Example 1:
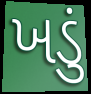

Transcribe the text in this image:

ખડું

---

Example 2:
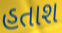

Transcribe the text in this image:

હતાશ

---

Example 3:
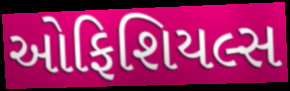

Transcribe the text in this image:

ઓફિશિયલ્સ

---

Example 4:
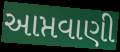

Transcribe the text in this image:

આપ્તવાણી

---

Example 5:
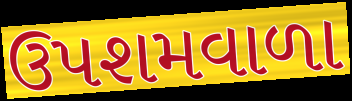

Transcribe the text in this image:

ઉપશમવાળા